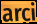
arci